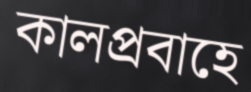
কালপ্রবাহে